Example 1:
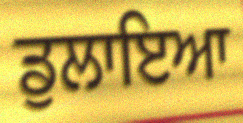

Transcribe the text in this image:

ਡੁਲਾਇਆ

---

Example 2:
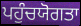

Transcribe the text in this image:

ਪਹੁੰਚਯੋਗਤਾ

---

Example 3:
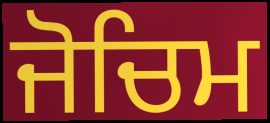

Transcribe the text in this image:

ਜੋਚਿਮ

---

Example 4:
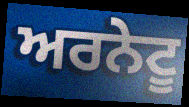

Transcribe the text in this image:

ਅਰਨੇਟੂ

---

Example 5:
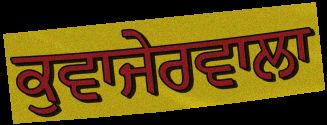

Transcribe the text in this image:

ਕੁਵਾਜੇਰਵਾਲਾ